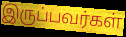
இருப்பவர்கள்